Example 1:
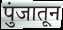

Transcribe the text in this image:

पुंजातून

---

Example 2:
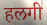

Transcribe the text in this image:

हलगी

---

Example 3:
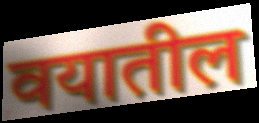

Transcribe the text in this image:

वयातील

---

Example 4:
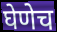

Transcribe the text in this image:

घेणेच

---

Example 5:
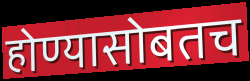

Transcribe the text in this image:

होण्यासोबतच